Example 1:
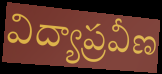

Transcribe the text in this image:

విద్యాప్రవీణ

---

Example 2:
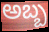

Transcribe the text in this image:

అబ్బ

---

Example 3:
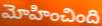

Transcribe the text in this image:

మోహించింది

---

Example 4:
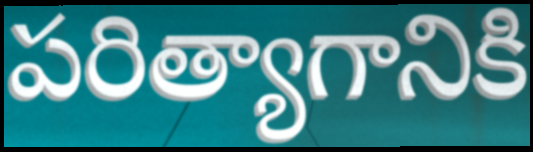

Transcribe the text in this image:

పరిత్యాగానికి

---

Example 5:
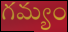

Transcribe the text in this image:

గమ్యం